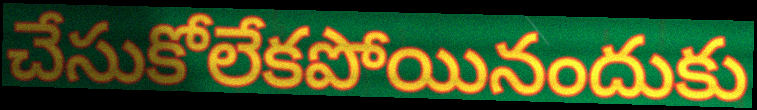
చేసుకోలేకపోయినందుకు